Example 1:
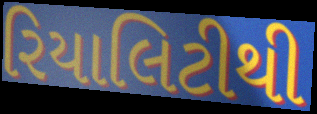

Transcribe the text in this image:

રિયાલિટીથી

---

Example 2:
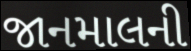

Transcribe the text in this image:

જાનમાલની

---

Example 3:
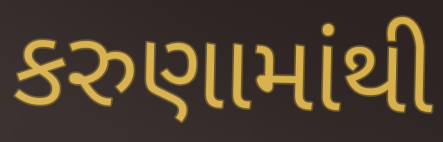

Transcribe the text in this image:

કરુણામાંથી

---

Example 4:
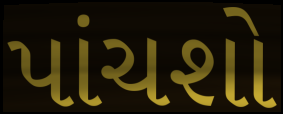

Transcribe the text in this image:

પાંચશો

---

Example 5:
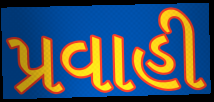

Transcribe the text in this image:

પ્રવાહી